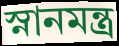
স্নানমন্ত্র